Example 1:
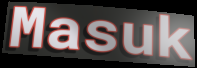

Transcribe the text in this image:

Masuk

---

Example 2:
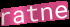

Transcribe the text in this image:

ratne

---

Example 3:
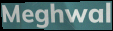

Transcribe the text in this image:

Meghwal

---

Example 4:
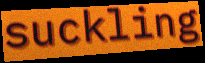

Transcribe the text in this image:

suckling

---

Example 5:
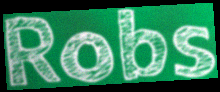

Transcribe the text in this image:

Robs